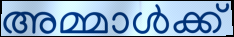
അമ്മാൾക്ക്